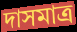
দাসমাত্র